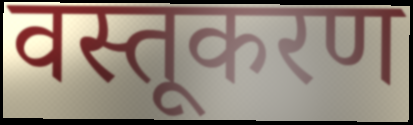
वस्तूकरण